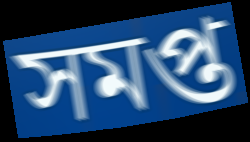
সমপ্ত